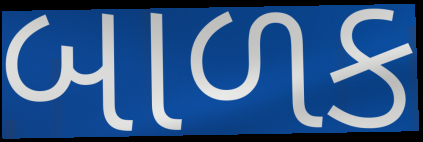
બાળક